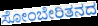
ಸೋಂಬೇರಿತನದ